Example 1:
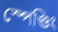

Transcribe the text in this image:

স্পেণ্ডিং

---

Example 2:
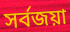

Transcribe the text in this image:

সৰ্বজয়া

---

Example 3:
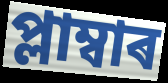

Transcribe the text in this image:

প্লাম্বাৰ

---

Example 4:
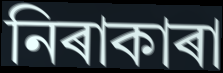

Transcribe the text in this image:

নিৰাকাৰা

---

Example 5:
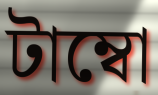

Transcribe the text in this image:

টাম্বো